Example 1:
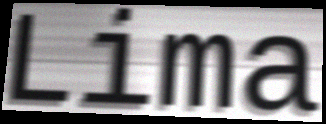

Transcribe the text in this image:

Lima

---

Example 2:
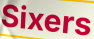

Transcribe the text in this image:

Sixers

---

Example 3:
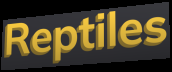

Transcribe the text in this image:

Reptiles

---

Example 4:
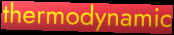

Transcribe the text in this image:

thermodynamic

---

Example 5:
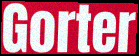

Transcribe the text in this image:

Gorter